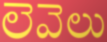
లెవెలు